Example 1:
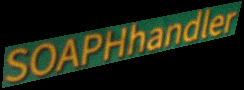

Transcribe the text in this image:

SOAPHhandler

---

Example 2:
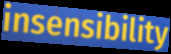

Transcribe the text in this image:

insensibility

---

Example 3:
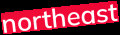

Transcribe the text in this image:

northeast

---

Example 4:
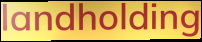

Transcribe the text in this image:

landholding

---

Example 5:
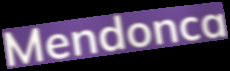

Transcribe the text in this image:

Mendonca